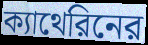
ক্যাথেরিনের